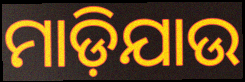
ମାଡ଼ିଯାଉ